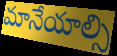
మానేయాల్సి